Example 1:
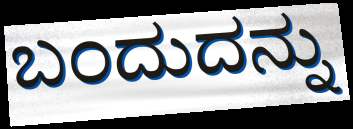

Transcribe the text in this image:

ಬಂದುದನ್ನು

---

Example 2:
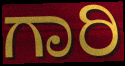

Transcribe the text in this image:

ಗಾರಿ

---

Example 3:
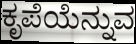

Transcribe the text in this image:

ಕೃಪೆಯೆನ್ನುವ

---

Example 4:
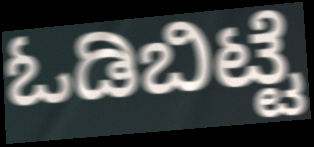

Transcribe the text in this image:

ಓಡಿಬಿಟ್ಟೆ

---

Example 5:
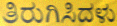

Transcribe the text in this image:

ತಿರುಗಿಸಿದಳು